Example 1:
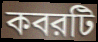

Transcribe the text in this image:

কবরটি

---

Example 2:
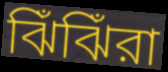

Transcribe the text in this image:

ঝিঁঝিঁরা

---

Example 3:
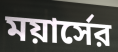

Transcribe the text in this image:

ময়ার্সের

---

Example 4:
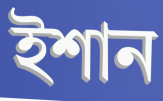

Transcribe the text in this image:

ইশান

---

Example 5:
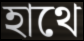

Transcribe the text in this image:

হাথে